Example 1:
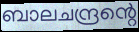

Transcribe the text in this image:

ബാലചന്ദ്രന്റെ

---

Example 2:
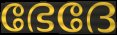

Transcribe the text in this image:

ഭേദേ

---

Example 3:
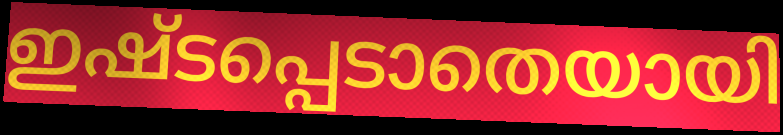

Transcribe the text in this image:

ഇഷ്ടപ്പെടാതെയായി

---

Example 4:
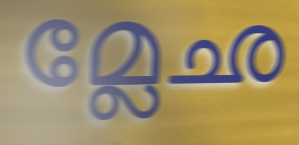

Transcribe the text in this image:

മ്ലേഛ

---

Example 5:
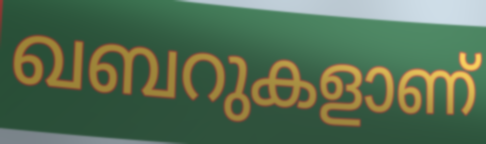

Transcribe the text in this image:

ഖബറുകളാണ്